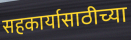
सहकार्यासाठीच्या